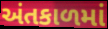
અંતકાળમાં